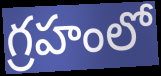
గ్రహంలో